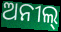
ଅନୀଲ୍